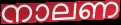
നാലണ